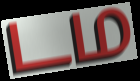
டம